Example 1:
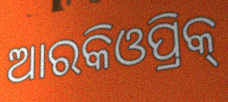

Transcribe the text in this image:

ଆରକିଓପ୍ରିକ୍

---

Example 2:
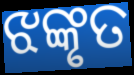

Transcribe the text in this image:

ଝଙ୍କୃତ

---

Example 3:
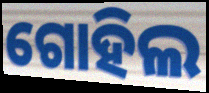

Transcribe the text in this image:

ଗୋହିଲ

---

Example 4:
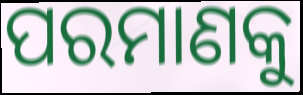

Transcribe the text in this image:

ପରମାଣକୁ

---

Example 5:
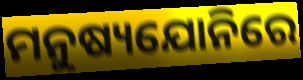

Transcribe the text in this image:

ମନୁଷ୍ୟଯୋନିରେ